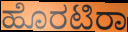
ಹೊರಟಿರಾ